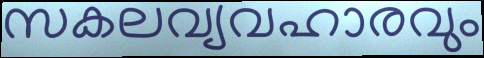
സകലവ്യവഹാരവും